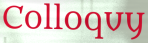
Colloquy